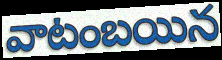
వాటంబయిన